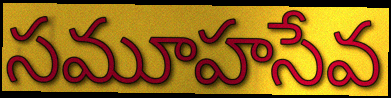
సమూహసేవ